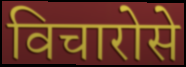
विचारोसे